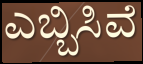
ಎಬ್ಬಿಸಿವೆ